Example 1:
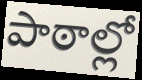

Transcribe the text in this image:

పాఠాల్లో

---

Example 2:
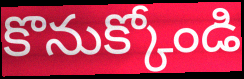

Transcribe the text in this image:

కొనుక్కోండి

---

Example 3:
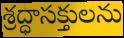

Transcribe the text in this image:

శ్రద్ధాసక్తులను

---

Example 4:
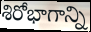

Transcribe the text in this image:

శిరోభాగాన్ని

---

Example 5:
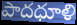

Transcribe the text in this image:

పాదధూళి